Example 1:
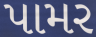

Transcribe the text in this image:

પામર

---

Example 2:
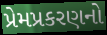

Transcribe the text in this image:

પ્રેમપ્રકરણનો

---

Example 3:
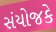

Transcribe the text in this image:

સંયોજકે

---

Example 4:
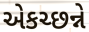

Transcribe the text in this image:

એકચ્છન્ને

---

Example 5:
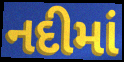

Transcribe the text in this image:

નદીમાં